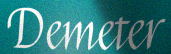
Demeter